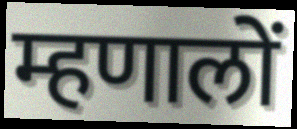
म्हणालों